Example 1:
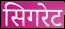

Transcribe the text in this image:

सिगरेट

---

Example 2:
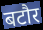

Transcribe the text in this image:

बटौर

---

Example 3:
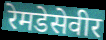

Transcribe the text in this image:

रेमडेसेवीर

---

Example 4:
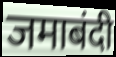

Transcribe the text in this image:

जमाबंदी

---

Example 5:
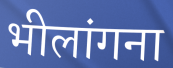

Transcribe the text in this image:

भीलांगना